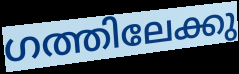
ഗത്തിലേക്കു